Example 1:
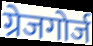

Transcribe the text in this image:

ग्रेजगोर्ज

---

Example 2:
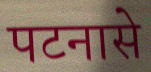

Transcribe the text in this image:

पटनासे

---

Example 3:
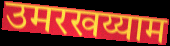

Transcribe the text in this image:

उमरखय्याम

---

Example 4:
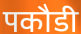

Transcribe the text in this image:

पकौडी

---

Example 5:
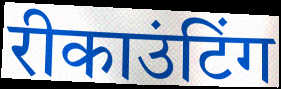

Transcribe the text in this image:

रीकाउंटिंग